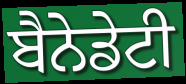
ਬੈਨੇਡੇਟੀ